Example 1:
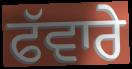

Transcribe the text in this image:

ਫੱਵਾਰੇ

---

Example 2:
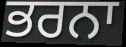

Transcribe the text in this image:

ਭਰਨਾ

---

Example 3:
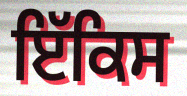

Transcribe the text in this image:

ਇੱਕਿਸ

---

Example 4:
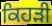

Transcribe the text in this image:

ਕਿਹੜੀ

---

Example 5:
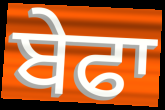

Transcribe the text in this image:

ਬੇਫਾ